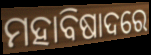
ମହାବିଷାଦରେ